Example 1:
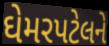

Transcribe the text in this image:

ઘેમરપટેલને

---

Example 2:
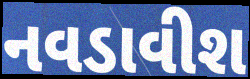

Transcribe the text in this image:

નવડાવીશ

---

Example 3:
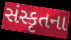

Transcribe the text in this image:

સંસ્કૃતના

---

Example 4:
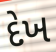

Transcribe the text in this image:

દેખ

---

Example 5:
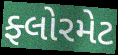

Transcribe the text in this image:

ફ્લોરમેટ